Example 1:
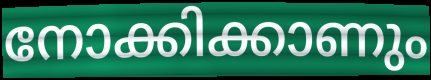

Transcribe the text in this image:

നോക്കിക്കാണും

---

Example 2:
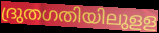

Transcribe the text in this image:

ദ്രുതഗതിയിലുളള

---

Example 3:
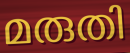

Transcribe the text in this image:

മരുതി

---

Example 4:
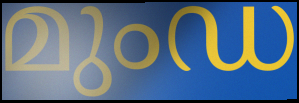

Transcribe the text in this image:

മുംഡ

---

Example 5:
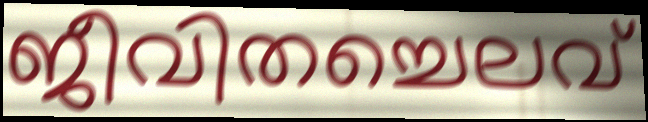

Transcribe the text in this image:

ജീവിതച്ചെലവ്